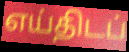
எய்திடப்